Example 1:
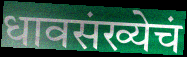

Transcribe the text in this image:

धावसंख्येचं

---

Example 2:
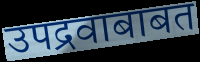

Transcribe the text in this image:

उपद्रवाबाबत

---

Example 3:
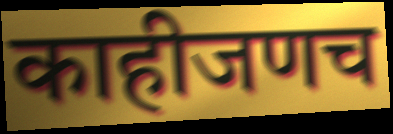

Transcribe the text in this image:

काहीजणच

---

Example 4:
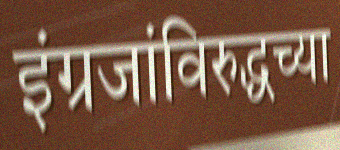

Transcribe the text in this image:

इंग्रजांविरुद्धच्या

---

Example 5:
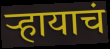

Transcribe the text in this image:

ऱ्हायाचं